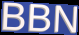
BBN